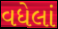
વધેલાં